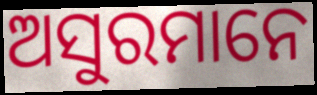
ଅସୁରମାନେ